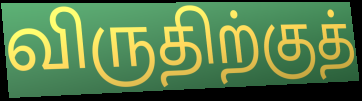
விருதிற்குத்